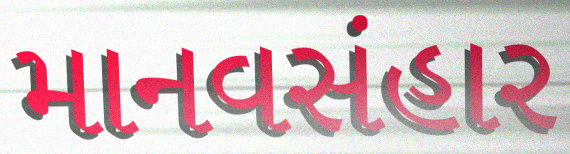
માનવસંહાર